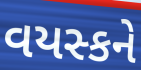
વયસ્કને